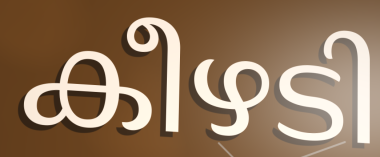
കീഴടി